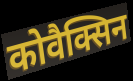
कोवैक्सिन